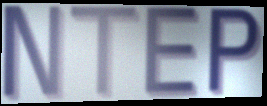
NTEP